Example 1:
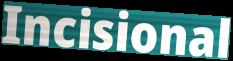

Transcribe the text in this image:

Incisional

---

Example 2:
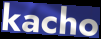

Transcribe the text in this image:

kacho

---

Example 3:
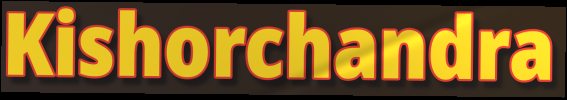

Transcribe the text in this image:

Kishorchandra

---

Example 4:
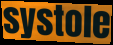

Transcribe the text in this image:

systole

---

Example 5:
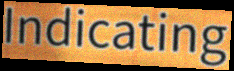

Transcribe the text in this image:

Indicating